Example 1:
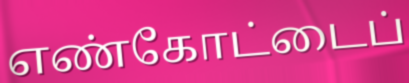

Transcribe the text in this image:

எண்கோட்டைப்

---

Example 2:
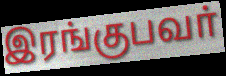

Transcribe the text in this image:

இரங்குபவர்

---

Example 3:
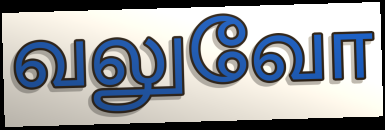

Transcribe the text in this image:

வலுவோ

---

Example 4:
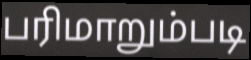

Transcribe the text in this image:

பரிமாறும்படி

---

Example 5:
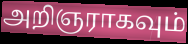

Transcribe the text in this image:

அறிஞராகவும்